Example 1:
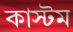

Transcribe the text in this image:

কাস্টম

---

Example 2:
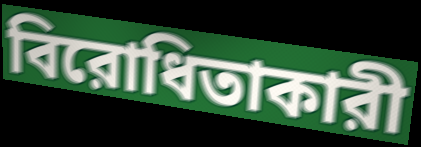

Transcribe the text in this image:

বিরোধিতাকারী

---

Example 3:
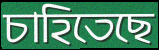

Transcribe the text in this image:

চাহিতেছে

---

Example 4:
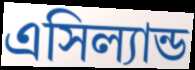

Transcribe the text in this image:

এসিল্যান্ড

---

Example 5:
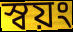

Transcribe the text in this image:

স্বয়ং